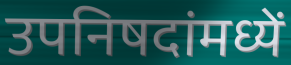
उपनिषदांमध्यें